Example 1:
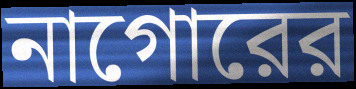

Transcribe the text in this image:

নাগোরের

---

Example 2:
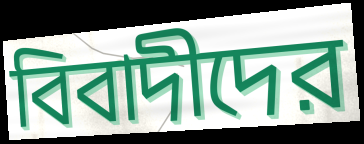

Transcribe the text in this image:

বিবাদীদের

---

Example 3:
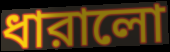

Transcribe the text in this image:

ধারালো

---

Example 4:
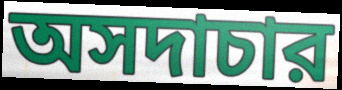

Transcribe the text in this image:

অসদাচার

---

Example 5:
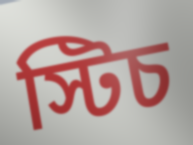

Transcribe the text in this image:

স্টিচ